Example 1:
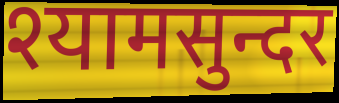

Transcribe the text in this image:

श्यामसुन्दर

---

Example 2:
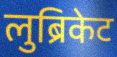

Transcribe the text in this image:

लुब्रिकेट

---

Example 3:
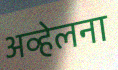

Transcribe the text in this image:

अव्हेलना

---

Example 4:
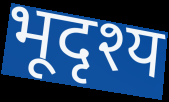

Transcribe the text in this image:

भूदृश्य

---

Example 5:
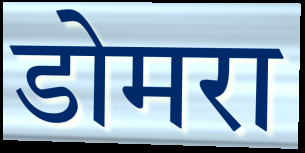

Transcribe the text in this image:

डोमरा